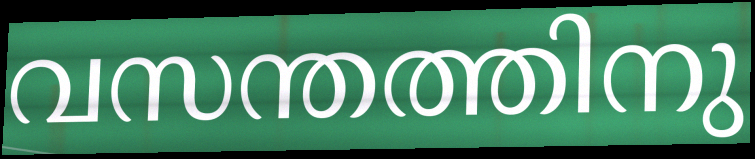
വസന്തത്തിനു